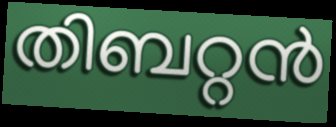
തിബറ്റൻ